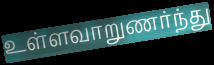
உள்ளவாறுணர்ந்து